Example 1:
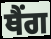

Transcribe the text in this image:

ਥੈਂਗ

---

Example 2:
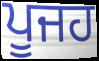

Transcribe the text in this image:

ਪੂਜਹ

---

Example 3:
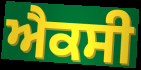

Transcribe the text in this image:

ਐਕਸੀ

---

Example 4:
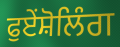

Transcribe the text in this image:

ਫੁਏਂਸ਼ੋਲਿੰਗ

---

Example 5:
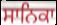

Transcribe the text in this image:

ਸਾਨਿਕਾ